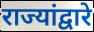
राज्यांद्वारे